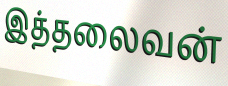
இத்தலைவன்